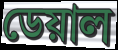
ডেয়াল